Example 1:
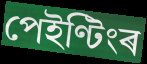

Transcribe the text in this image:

পেইণ্টিংৰ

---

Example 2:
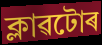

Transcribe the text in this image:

ক্লাৱটোৰ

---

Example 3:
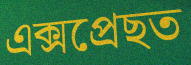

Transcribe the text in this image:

এক্সপ্ৰেছত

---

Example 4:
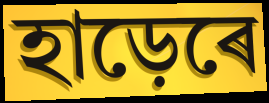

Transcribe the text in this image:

হাড়েৰে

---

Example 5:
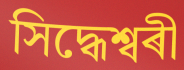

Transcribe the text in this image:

সিদ্ধেশ্বৰী